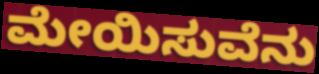
ಮೇಯಿಸುವೆನು